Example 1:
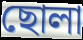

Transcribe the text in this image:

ছোলা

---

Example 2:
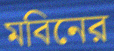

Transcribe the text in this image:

মবিনের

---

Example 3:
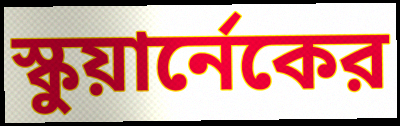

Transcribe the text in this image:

স্কুয়ার্নেকের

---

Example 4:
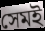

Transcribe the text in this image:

সেমই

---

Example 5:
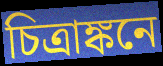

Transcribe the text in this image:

চিত্রাঙ্কনে